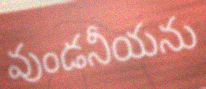
వుండనీయను